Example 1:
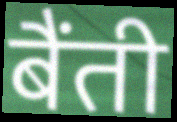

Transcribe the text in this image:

बैंती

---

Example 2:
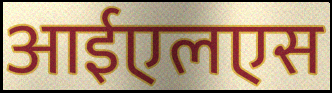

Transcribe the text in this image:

आईएलएस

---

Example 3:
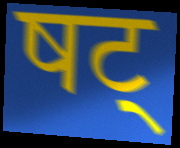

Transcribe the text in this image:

षट्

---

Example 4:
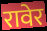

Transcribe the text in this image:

रावेर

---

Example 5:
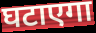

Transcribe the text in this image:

घटाएगा